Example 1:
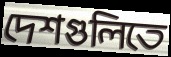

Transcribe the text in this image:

দেশগুলিতে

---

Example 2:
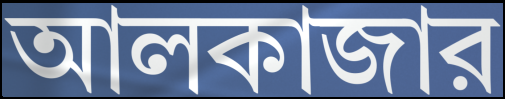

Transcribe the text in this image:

আলকাজার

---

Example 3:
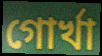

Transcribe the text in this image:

গোর্খা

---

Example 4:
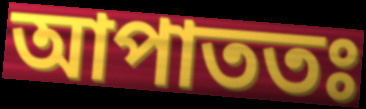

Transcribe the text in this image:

আপাততঃ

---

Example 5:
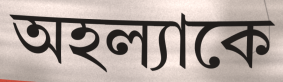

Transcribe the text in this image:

অহল্যাকে